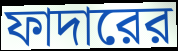
ফাদারের